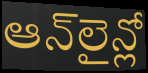
ఆన్‌లైన్లో